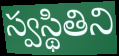
స్వస్థితిని